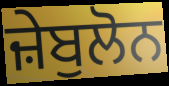
ਜ਼ੇਬੁਲੋਨ